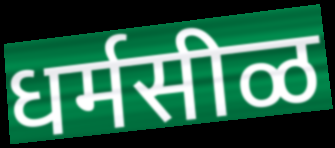
धर्मसीळ